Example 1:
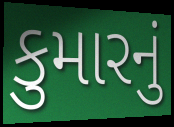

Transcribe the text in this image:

કુમારનું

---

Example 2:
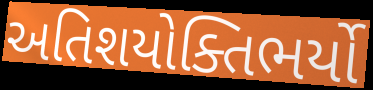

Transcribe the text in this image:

અતિશયોક્તિભર્યો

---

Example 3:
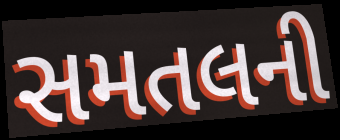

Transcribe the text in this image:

સમતલની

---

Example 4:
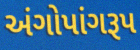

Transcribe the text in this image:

અંગોપાંગરૂપ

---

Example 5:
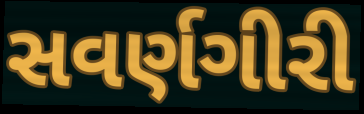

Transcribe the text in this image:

સવર્ણગીરી